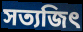
সত্যজিৎ